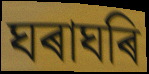
ঘৰাঘৰি